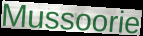
Mussoorie